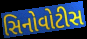
સિનોવોટીસ